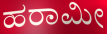
ಹರಾಮೀ